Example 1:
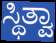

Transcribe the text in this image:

ಸ್ಥಿತ್ವಾ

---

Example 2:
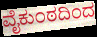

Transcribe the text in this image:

ವೈಕುಂಠದಿಂದ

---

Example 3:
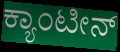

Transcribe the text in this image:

ಕ್ಯಾಂಟೀನ್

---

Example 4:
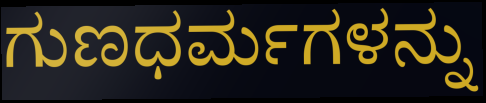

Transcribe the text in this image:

ಗುಣಧರ್ಮಗಳನ್ನು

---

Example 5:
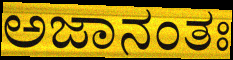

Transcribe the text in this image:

ಅಜಾನಂತಃ